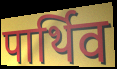
पार्थिव